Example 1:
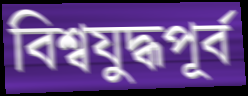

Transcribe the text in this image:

বিশ্বযুদ্ধপূর্ব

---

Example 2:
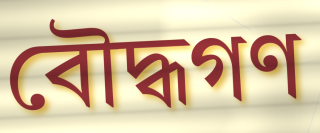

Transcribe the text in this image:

বৌদ্ধগণ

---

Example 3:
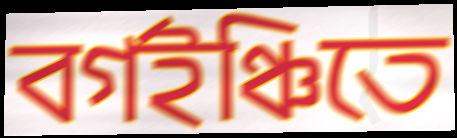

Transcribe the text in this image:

বর্গইঞ্চিতে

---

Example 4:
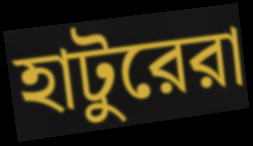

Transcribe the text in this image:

হাটুরেরা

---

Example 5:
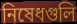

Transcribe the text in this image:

নিষেধগুলি